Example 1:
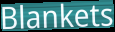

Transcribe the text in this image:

Blankets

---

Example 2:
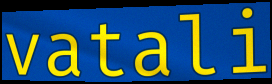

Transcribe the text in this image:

vatali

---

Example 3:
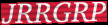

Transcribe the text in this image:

JRRGRP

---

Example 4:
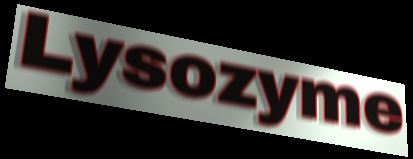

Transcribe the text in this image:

Lysozyme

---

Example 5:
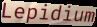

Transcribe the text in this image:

Lepidium